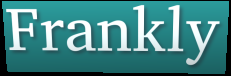
Frankly